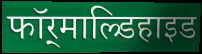
फॉर्माल्डिहाइड